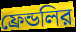
ফ্রেন্ডলির